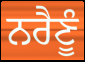
ਨਰੈਣੂੰ